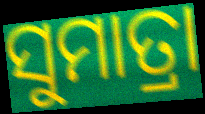
ସୁମାତ୍ରା